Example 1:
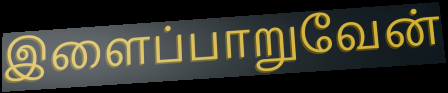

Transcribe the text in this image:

இளைப்பாறுவேன்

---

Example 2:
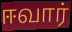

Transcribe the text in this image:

ஈவார்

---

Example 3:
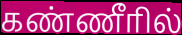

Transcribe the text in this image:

கண்ணீரில்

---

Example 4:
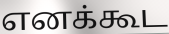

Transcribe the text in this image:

எனக்கூட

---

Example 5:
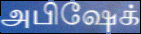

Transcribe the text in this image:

அபிஷேக்